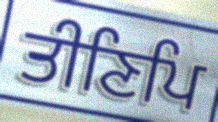
ਤੀਣਿਪਿ